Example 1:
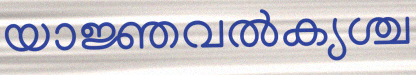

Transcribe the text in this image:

യാജ്ഞവൽക്യശ്ച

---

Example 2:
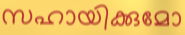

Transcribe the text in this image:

സഹായിക്കുമോ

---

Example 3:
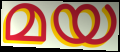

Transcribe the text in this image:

മയ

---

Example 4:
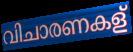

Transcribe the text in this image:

വിചാരണകള്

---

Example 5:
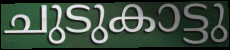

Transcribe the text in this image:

ചുടുകാട്ടു